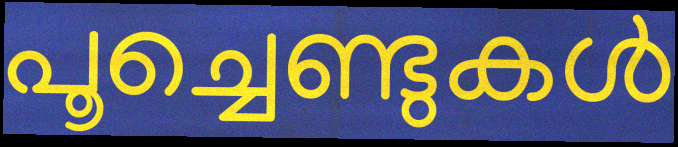
പൂച്ചെണ്ടുകൾ